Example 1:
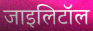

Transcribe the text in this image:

जाइलिटॉल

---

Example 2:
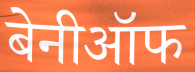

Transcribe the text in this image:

बेनीऑफ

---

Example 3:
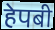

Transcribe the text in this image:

हेपबी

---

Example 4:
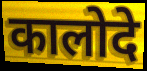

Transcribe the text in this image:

कालोदे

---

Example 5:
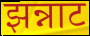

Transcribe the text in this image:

झन्नाट